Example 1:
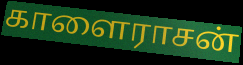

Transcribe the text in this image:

காளைராசன்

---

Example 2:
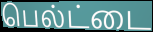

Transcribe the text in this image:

பெல்ட்டை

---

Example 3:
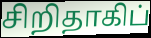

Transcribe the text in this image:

சிறிதாகிப்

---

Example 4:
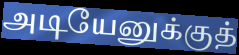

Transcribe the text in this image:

அடியேனுக்குத்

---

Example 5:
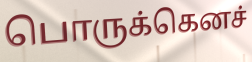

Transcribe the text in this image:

பொருக்கெனச்